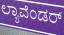
ಲ್ಯಾವೆಂಡರ್